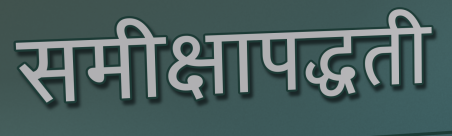
समीक्षापद्धती